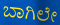
ಬಾಗಿಲೇ